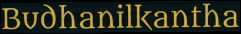
Budhanilkantha